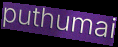
puthumai